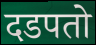
दडपतो